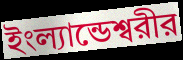
ইংল্যান্ডেশ্বরীর